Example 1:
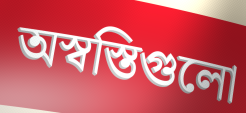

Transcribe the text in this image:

অস্বস্তিগুলো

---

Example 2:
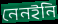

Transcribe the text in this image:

নেনইনি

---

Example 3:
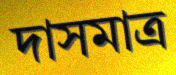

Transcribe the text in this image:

দাসমাত্র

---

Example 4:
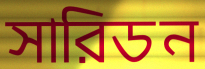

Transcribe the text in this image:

সারিডন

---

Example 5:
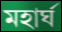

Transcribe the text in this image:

মহার্ঘ